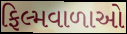
ફિલ્મવાળાઓ